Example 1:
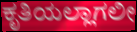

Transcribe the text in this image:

ಕೃತಿಯಲ್ಲಾಗಲೀ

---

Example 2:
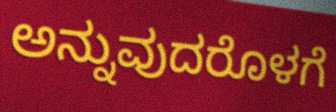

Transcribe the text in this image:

ಅನ್ನುವುದರೊಳಗೆ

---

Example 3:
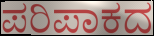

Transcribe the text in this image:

ಪರಿಪಾಕದ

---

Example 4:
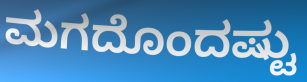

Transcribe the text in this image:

ಮಗದೊಂದಷ್ಟು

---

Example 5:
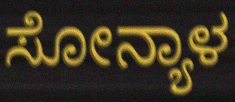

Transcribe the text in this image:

ಸೋನ್ಯಾಳ